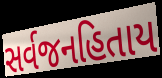
સર્વજનહિતાય